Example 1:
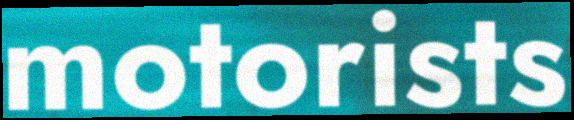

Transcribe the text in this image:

motorists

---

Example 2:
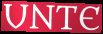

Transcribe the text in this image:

UNTE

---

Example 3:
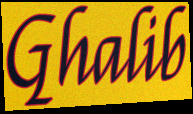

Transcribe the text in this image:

Ghalib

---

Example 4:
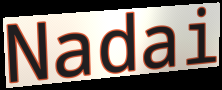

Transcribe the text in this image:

Nadai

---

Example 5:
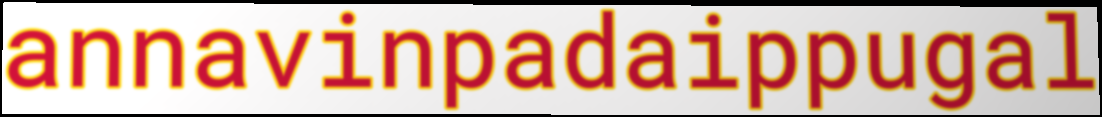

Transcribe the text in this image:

annavinpadaippugal